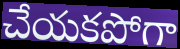
చేయకపోగా